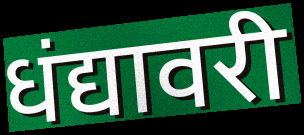
धंद्यावरी